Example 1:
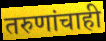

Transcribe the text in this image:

तरुणांचाही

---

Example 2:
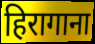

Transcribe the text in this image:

हिरागाना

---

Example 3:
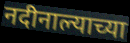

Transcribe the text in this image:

नदीनाल्याच्या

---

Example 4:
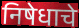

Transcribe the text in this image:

निषेधाचे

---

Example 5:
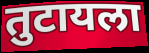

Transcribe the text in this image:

तुटायला